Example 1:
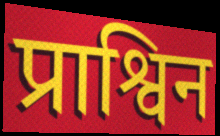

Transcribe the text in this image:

प्राश्विन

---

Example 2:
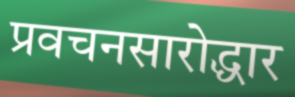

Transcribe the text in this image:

प्रवचनसारोद्धार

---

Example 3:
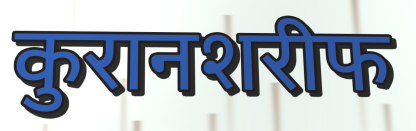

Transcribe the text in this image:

कुरानशरीफ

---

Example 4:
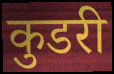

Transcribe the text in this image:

कुडरी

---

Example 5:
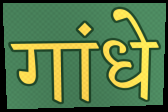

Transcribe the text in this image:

गांधे